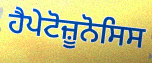
ਹੈਪੇਟੋਜ਼ੂਨੋਸਿਸ